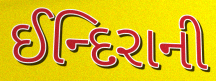
ઈન્દિરાની